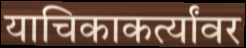
याचिकाकर्त्यांवर